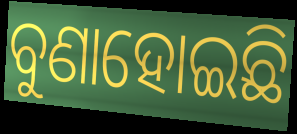
ବୁଣାହୋଇଛି